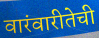
वारंवारीतेची